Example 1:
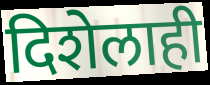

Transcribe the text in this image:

दिशेलाही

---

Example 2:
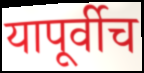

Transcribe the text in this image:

यापूर्वीच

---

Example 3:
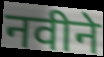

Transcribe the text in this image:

नवीने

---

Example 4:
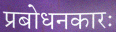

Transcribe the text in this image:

प्रबोधनकारः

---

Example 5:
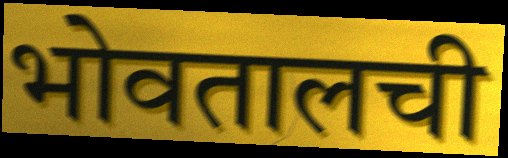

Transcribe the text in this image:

भोवतालची